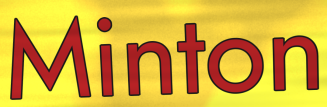
Minton